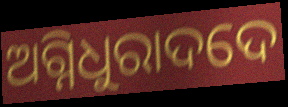
ଅଗ୍ନିଧୁରାଦଦେ